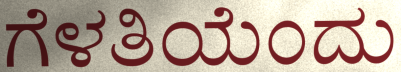
ಗೆಳತಿಯೆಂದು